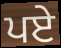
ਪਏ